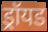
ड्रॉयड